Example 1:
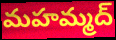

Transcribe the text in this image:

మహమ్మద్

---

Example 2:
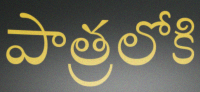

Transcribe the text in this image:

పాత్రలోకి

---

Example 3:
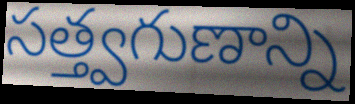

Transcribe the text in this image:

సత్త్వగుణాన్ని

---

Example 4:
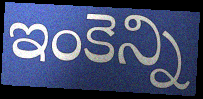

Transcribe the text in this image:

ఇంకెన్ని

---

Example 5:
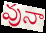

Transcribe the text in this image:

వునా